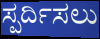
ಸ್ಪರ್ದಿಸಲು